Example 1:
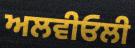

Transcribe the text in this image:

ਅਲਵੀਓਲੀ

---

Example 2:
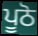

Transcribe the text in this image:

ਪੂਠੋ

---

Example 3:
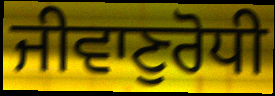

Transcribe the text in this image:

ਜੀਵਾਣੁਰੋਧੀ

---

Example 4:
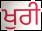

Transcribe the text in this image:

ਖੁਰੀ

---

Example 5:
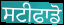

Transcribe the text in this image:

ਸਟੀਫਾਡੋ